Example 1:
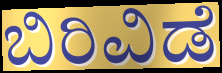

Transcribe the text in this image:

ಬಿರಿವಿಡೆ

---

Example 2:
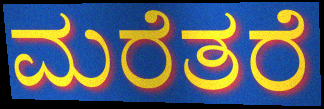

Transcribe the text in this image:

ಮರೆತರೆ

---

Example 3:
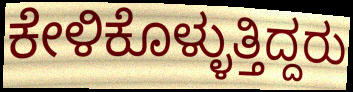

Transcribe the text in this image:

ಕೇಳಿಕೊಳ್ಳುತ್ತಿದ್ದರು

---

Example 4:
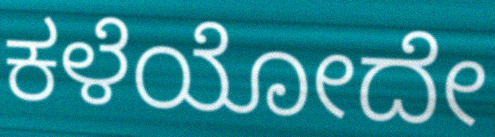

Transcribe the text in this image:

ಕಳೆಯೋದೇ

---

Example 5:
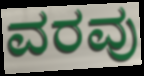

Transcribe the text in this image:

ವರವು